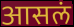
आसलं